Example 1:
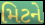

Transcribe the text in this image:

મિટને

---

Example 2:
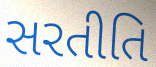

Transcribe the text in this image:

સરતીતિ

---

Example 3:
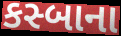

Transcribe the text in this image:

કસ્બાના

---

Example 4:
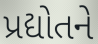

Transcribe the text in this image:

પ્રદ્યોતને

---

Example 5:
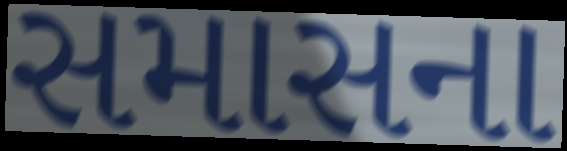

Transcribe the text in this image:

સમાસના